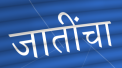
जातींचा